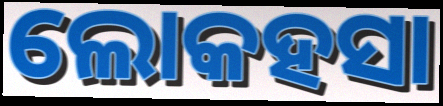
ଲୋକହସା